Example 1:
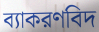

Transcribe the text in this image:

ব্যাকরণবিদ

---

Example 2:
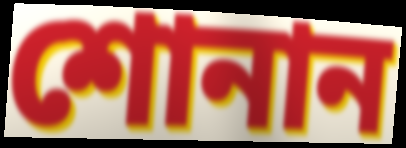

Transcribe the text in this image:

শোনান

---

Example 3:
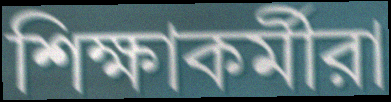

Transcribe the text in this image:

শিক্ষাকর্মীরা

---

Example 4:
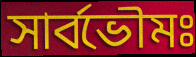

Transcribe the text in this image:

সার্বভৌমঃ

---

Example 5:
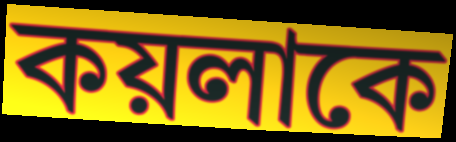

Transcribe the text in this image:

কয়লাকে